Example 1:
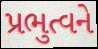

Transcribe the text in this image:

પ્રભુત્વને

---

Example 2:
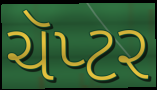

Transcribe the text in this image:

ચૅપ્ટર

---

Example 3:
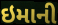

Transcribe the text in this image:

ઇમાની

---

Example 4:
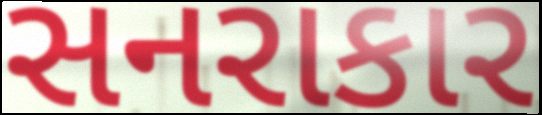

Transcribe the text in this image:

સનરાકાર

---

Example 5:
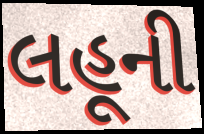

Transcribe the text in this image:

લહૂની